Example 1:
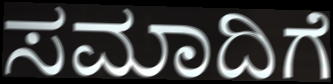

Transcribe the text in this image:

ಸಮಾದಿಗೆ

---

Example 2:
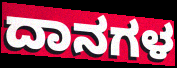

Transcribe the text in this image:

ದಾನಗಳ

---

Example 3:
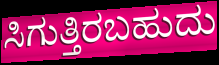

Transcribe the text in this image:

ಸಿಗುತ್ತಿರಬಹುದು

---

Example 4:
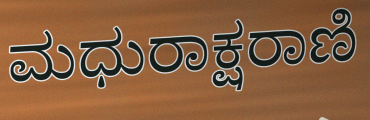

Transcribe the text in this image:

ಮಧುರಾಕ್ಷರಾಣಿ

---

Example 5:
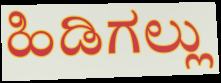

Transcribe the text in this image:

ಹಿಡಿಗಲ್ಲು